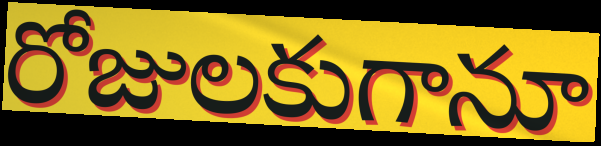
రోజులకుగానూ